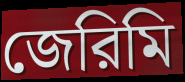
জেরিমি